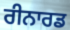
ਰੀਨਾਰਡ